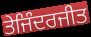
ਤੇਜਿੰਦਰਜੀਤ